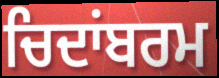
ਚਿਦਾਂਬਰਮ